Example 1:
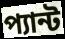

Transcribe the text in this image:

প্যান্ট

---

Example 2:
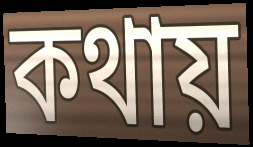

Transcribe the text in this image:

কথায়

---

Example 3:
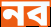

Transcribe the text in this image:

নব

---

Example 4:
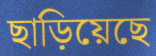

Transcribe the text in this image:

ছাড়িয়েছে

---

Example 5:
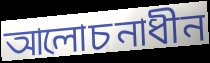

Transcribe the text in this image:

আলোচনাধীন